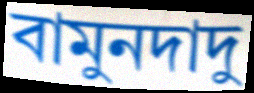
বামুনদাদু